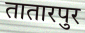
तातारपुर